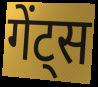
गेंट्स